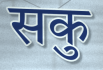
सकु